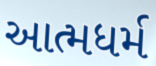
આત્મધર્મ